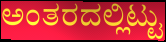
ಅಂತರದಲ್ಲಿಟ್ಟು